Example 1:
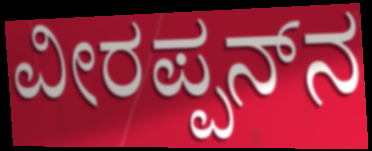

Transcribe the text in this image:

ವೀರಪ್ಪನ್‍ನ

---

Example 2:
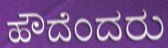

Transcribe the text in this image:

ಹೌದೆಂದರು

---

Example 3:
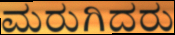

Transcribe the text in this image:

ಮರುಗಿದರು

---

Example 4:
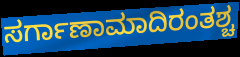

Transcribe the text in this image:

ಸರ್ಗಾಣಾಮಾದಿರಂತಶ್ಚ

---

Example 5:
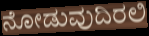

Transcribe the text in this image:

ನೋಡುವುದಿರಲಿ